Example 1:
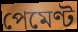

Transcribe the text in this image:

পেমেণ্ট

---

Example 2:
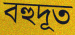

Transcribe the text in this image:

বহুদূত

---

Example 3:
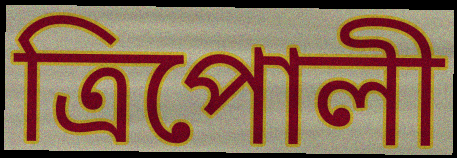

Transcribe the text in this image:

ত্রিপোলী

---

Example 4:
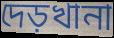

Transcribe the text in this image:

দেড়খানা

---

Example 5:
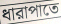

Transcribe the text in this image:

ধারাপাতে